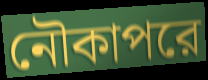
নৌকাপরে